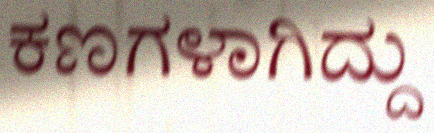
ಕಣಗಳಾಗಿದ್ದು